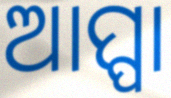
ଆପ୍ପା